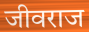
जीवराज